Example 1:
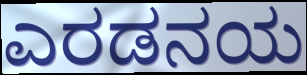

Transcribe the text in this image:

ಎರಡನಯ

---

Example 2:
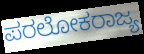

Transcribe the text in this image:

ಪರಲೋಕರಾಜ್ಯ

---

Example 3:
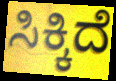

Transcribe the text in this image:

ಸಿಕ್ಕಿದೆ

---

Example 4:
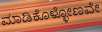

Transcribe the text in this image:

ಮಾಡಿಕೊಳ್ಳೋಣವೇ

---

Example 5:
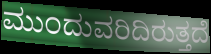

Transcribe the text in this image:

ಮುಂದುವರಿದಿರುತ್ತದೆ